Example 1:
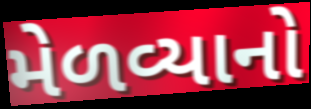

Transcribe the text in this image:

મેળવ્યાનો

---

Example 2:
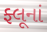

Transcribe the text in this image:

ફ્લૂનાં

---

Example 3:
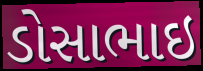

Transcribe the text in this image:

ડોસાભાઇ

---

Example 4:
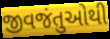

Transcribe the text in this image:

જીવજંતુઓથી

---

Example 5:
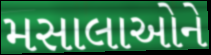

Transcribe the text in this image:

મસાલાઓને